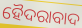
ହୈଦରାବାଦ